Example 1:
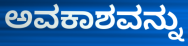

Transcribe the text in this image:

ಅವಕಾಶವನ್ನು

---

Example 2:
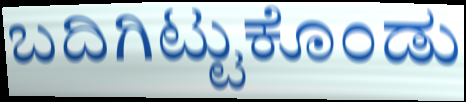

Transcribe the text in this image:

ಬದಿಗಿಟ್ಟುಕೊಂಡು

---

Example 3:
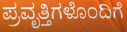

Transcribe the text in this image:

ಪ್ರವೃತ್ತಿಗಳೊಂದಿಗೆ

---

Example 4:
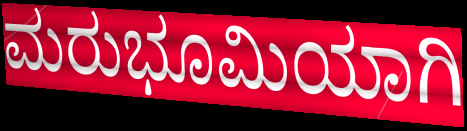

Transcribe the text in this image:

ಮರುಭೂಮಿಯಾಗಿ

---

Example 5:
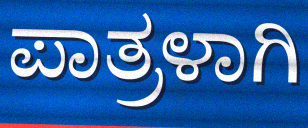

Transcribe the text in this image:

ಪಾತ್ರಳಾಗಿ